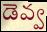
డెవ్వ